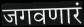
जगवणारं